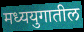
मध्ययुगातील